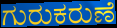
ಗುರುಕರುಣೆ